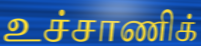
உச்சாணிக்